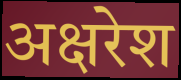
अक्षरेश